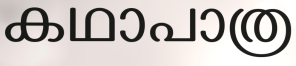
കഥാപാത്ര